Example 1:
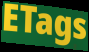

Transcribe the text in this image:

ETags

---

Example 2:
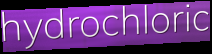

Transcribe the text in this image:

hydrochloric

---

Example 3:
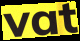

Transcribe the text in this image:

vat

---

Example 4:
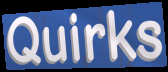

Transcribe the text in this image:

Quirks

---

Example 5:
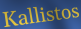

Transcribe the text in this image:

Kallistos